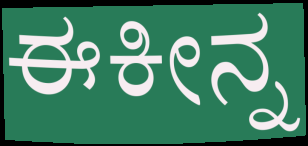
ಈಕೀನ್ನ